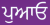
ਪੁਆਓ